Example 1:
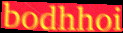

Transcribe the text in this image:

bodhhoi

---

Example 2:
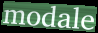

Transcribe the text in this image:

modale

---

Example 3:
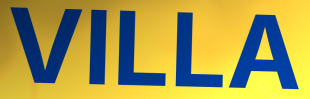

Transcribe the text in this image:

VILLA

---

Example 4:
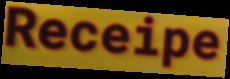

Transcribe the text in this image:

Receipe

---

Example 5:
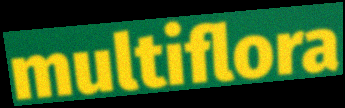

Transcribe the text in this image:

multiflora